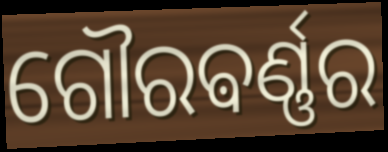
ଗୌରଵର୍ଣ୍ଣର